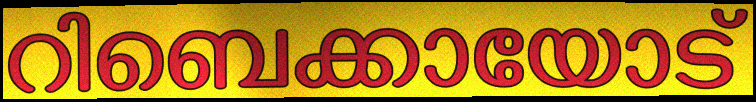
റിബെക്കായോട്